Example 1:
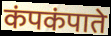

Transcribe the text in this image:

कंपकंपाते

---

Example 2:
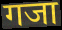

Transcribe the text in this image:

गजा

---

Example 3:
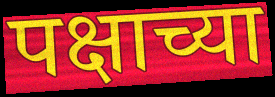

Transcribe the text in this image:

पक्षाच्या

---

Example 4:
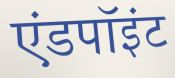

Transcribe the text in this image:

एंडपॉइंट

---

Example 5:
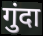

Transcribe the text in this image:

गुंदा